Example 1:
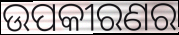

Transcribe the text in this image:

ଉପକୀରଣର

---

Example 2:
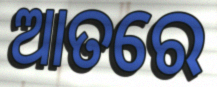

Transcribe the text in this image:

ଆତରେ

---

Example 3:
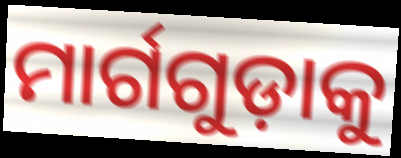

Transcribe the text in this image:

ମାର୍ଗଗୁଡ଼ାକୁ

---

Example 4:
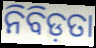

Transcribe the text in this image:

ନିବିଡ଼ତା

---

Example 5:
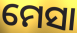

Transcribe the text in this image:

ମେସା